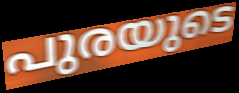
പുരയുടെ